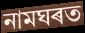
নামঘৰত